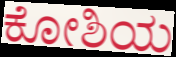
ಕೋಶಿಯ